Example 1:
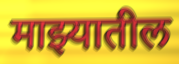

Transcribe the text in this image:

माझ्यातील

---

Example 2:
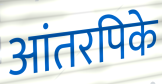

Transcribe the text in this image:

आंतरपिके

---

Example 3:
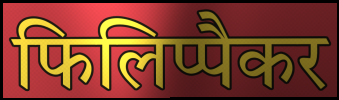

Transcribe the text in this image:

फिलिप्पैकर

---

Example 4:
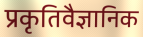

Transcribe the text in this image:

प्रकृतिवैज्ञानिक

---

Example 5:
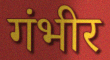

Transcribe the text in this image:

गंभीर